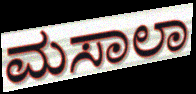
ಮಸಾಲಾ